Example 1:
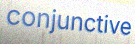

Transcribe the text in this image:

conjunctive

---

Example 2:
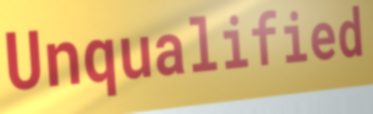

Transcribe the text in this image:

Unqualified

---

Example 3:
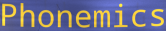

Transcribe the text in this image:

Phonemics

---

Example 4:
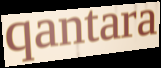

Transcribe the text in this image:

qantara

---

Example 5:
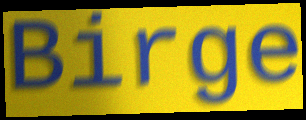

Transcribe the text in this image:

Birge